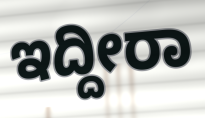
ಇದ್ದೀರಾ